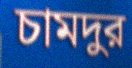
চামদুর